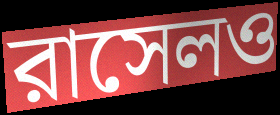
রাসেলও